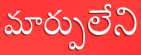
మార్పులేని